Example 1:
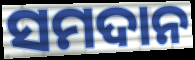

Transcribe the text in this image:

ସମଦାନ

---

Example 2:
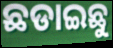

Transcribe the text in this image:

ଛଡାଇଛୁ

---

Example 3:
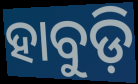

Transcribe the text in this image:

ହାବୁଡ଼ି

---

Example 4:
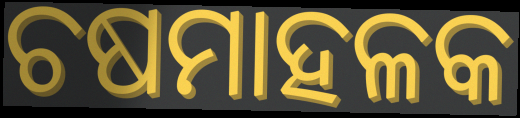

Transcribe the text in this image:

ଚଷମାହଳକ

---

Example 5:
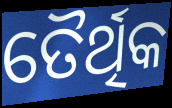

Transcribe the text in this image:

ତୈର୍ଥିକ